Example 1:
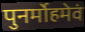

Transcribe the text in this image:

पुनर्मोहमेवं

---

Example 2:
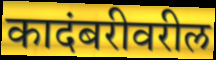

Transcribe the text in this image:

कादंबरीवरील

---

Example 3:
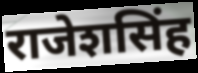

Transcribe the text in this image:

राजेशसिंह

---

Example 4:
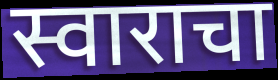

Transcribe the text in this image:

स्वाराचा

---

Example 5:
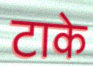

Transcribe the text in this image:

टाके